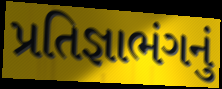
પ્રતિજ્ઞાભંગનું